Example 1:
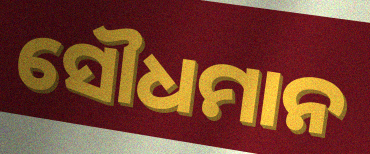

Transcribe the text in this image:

ସୌଧମାନ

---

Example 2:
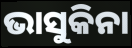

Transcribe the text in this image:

ଭାସୁକିନା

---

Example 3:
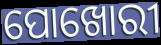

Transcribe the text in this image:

ପୋଖୋରୀ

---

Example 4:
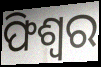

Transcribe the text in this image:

ଫିଶ୍ୱର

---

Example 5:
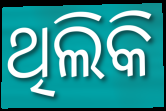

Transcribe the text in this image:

ଥିଲିକି